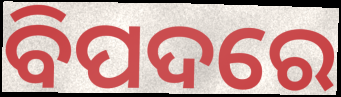
ବିପଦରେ